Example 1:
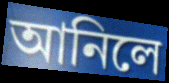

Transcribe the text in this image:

আনিলে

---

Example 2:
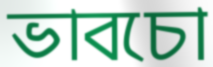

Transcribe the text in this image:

ভাবচো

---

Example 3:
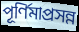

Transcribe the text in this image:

পূর্ণিমাপ্রসন্ন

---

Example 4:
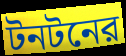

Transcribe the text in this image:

টনটনের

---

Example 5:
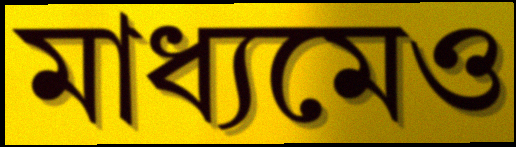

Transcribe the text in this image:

মাধ্যমেও